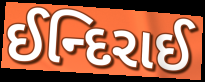
ઈન્દિરાઈ